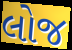
લોજ